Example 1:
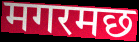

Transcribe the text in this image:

मगरमछ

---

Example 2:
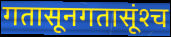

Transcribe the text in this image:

गतासूनगतासूंश्च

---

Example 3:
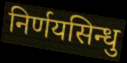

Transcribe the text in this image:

निर्णयसिन्धु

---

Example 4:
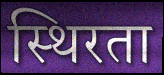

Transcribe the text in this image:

स्थिरता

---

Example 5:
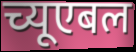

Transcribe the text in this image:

च्यूएबल